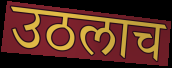
उठलाच